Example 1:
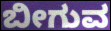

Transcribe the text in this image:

ಬೀಗುವ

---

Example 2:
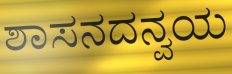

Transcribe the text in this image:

ಶಾಸನದನ್ವಯ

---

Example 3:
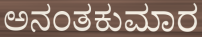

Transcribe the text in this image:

ಅನಂತಕುಮಾರ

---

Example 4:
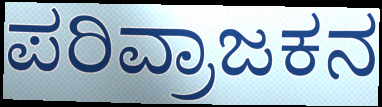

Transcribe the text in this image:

ಪರಿವ್ರಾಜಕನ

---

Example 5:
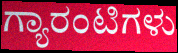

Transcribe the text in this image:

ಗ್ಯಾರಂಟಿಗಳು